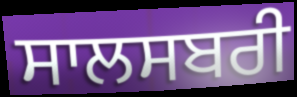
ਸਾਲਸਬਰੀ